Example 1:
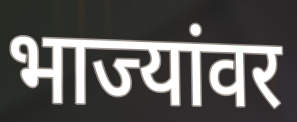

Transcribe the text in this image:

भाज्यांवर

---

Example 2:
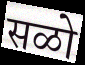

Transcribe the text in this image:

सळो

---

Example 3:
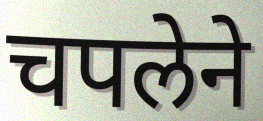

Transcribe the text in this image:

चपलेने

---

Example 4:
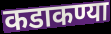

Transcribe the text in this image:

कडाकण्या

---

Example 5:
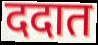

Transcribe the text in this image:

ददात